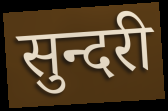
सुन्दरी